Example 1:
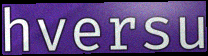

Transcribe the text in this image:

hversu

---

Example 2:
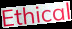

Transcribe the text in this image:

Ethical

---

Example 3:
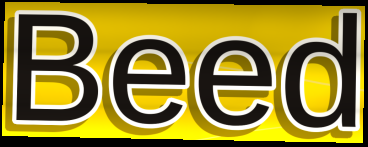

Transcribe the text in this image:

Beed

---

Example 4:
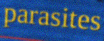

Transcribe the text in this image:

parasites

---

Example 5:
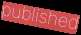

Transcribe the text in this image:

published